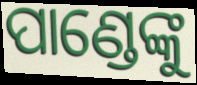
ପାଣ୍ଡେଙ୍କୁ